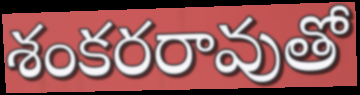
శంకరరావుతో